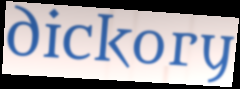
dickory